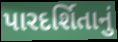
પારદર્શિતાનું